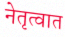
नेतृत्वात